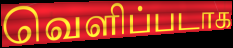
வெளிப்படாக